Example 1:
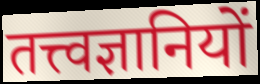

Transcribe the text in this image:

तत्त्वज्ञानियों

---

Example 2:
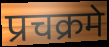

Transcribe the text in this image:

प्रचक्रमे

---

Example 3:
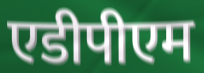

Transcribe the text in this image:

एडीपीएम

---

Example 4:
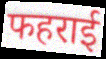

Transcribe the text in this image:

फहराई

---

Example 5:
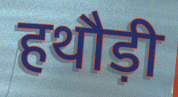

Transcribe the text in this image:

हथौड़ी